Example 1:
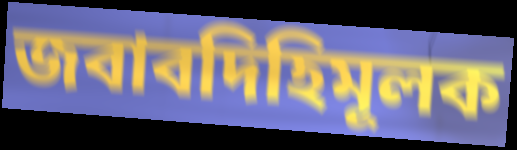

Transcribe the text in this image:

জবাবদিহিমূলক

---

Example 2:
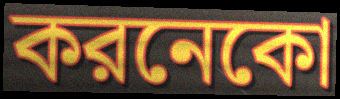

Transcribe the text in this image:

করনেকো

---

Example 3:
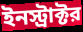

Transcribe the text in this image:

ইনস্ট্রাক্টর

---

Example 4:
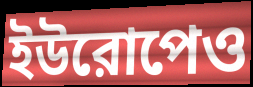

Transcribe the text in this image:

ইউরোপেও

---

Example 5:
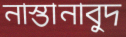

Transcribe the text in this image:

নাস্তানাবুদ